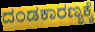
ದಂಡಕಾರಣ್ಯಕ್ಕೆ